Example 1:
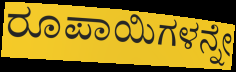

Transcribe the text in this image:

ರೂಪಾಯಿಗಳನ್ನೇ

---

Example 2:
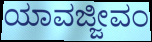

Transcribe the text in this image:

ಯಾವಜ್ಜೀವಂ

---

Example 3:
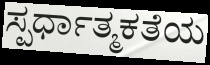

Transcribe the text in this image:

ಸ್ಪರ್ಧಾತ್ಮಕತೆಯ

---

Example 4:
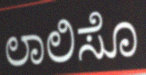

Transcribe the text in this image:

ಲಾಲಿಸೊ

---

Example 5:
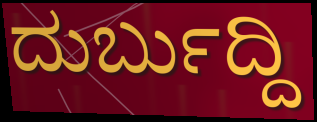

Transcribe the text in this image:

ದುರ್ಬುದ್ದಿ